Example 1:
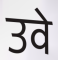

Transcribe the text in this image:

उवे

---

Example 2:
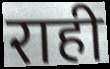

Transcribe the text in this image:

राही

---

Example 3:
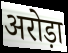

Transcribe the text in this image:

अरोड़ा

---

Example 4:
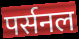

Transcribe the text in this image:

पर्सनल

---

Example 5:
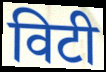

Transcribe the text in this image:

विटी